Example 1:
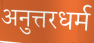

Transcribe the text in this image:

अनुत्तरधर्म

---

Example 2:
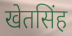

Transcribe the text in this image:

खेतसिंह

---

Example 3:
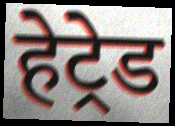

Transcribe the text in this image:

हेट्रेड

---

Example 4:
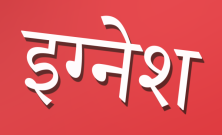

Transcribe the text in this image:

इग्नेश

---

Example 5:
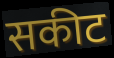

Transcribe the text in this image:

सकीट